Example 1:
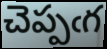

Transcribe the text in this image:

చెప్పఁగ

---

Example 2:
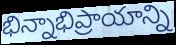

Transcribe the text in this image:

భిన్నాభిప్రాయాన్ని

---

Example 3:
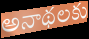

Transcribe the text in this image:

అనాథలకు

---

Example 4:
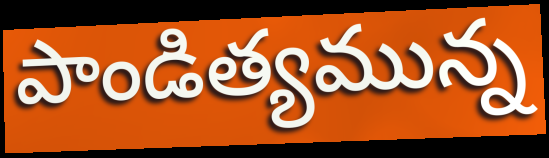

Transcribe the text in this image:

పాండిత్యమున్న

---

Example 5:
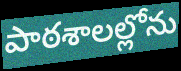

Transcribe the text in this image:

పాఠశాలల్లోను